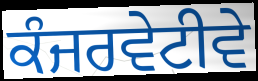
ਕੰਜਰਵੇਟੀਵੇ